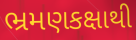
ભ્રમણકક્ષાથી